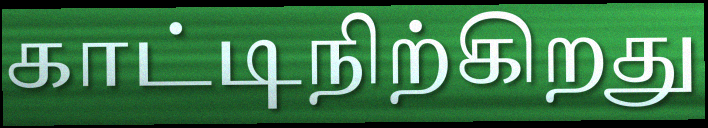
காட்டிநிற்கிறது